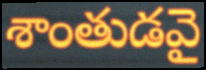
శాంతుడవై